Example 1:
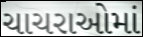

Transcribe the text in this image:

ચાચરાઓમાં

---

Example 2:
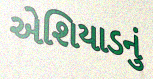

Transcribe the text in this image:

એશિયાડનું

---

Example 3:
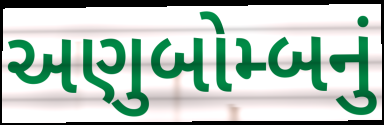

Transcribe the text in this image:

અણુબોમ્બનું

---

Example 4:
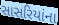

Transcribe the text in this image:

સાસરિયાંના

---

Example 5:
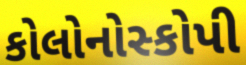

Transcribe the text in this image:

કોલોનોસ્કોપી